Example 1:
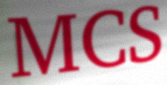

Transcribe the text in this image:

MCS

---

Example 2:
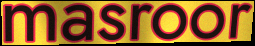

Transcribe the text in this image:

masroor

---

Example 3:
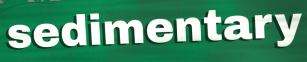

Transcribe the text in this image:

sedimentary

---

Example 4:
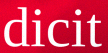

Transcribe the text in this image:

dicit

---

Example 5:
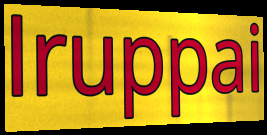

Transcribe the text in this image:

Iruppai